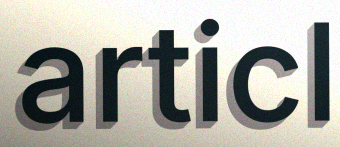
articl